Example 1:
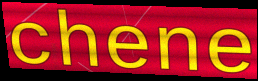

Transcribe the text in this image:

chene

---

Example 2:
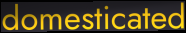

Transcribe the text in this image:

domesticated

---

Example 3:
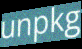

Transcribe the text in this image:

unpkg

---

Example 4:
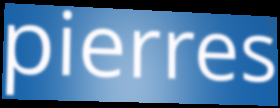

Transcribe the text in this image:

pierres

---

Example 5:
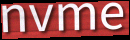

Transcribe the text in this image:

nvme